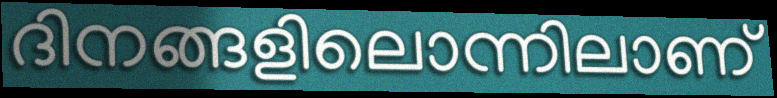
ദിനങ്ങളിലൊന്നിലാണ്